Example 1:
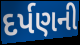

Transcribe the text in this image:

દર્પણની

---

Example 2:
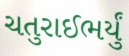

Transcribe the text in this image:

ચતુરાઈભર્યું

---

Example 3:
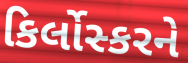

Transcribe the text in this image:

કિર્લોસ્કરને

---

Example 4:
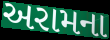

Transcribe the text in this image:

અરામના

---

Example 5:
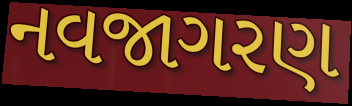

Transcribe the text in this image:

નવજાગરણ